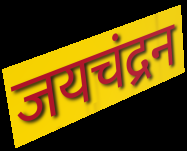
जयचंद्रन